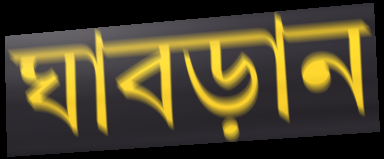
ঘাবড়ান